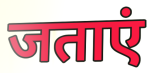
जताएं